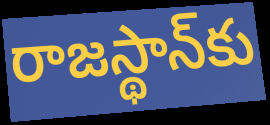
రాజస్థాన్‌కు